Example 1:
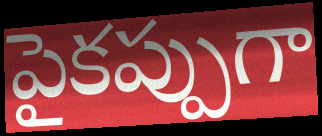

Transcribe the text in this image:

పైకప్పుగా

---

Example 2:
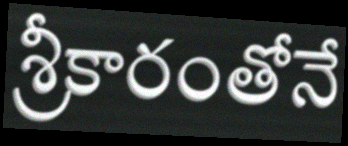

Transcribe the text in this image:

శ్రీకారంతోనే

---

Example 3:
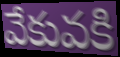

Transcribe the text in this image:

వేకువకి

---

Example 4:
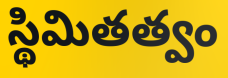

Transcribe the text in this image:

స్థిమితత్వం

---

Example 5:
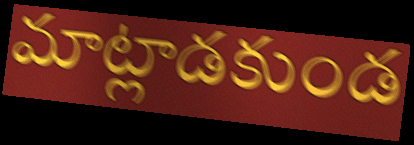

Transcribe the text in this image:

మాట్లాడకుండ